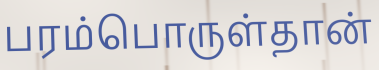
பரம்பொருள்தான்